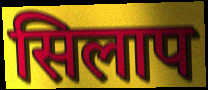
सिलाप